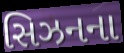
સિઝનના